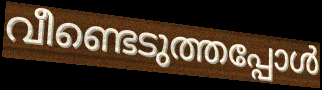
വീണ്ടെടുത്തപ്പോൾ